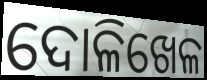
ଦୋଳିଖେଳ